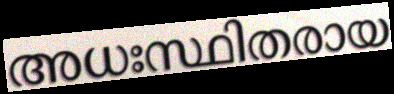
അധഃസ്ഥിതരായ